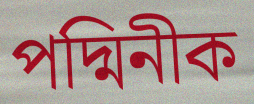
পদ্মিনীক